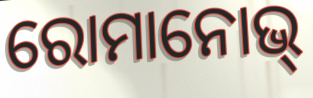
ରୋମାନୋଭ୍